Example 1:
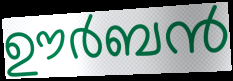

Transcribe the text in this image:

ഊർബൻ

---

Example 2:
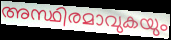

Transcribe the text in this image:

അസ്ഥിരമാവുകയും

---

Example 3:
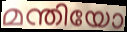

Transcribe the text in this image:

മന്തിയോ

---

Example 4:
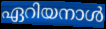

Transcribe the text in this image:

ഏറിയനാൾ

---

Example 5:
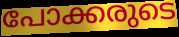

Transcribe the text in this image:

പോക്കരുടെ